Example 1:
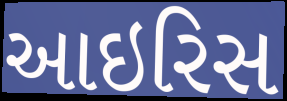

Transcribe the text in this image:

આઇરિસ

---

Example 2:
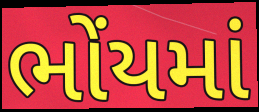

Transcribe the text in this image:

ભોંયમાં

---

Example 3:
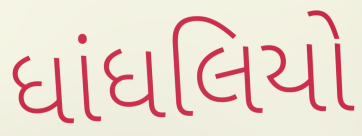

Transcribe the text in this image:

ધાંધલિયો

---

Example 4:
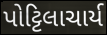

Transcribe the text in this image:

પોટ્ટિલાચાર્ય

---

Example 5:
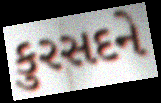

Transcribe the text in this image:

કુરસદને